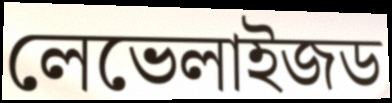
লেভেলাইজড